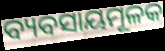
ବ୍ୟବସାୟମୂଳକ